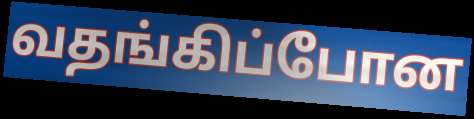
வதங்கிப்போன